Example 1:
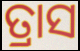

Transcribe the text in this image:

ତ୍ରାସ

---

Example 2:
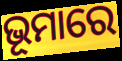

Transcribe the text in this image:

ଭୂମାରେ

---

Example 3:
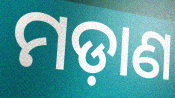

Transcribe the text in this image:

ମଡ଼ାଣ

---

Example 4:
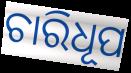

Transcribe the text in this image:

ଚାରିଧୂପ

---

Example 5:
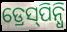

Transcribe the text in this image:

ଡ୍ରେସ୍‌ପିନ୍ଧି